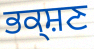
ਭਕ੍ਸ਼ਣ